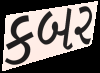
કબર